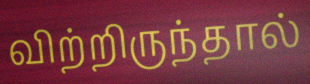
விற்றிருந்தால்